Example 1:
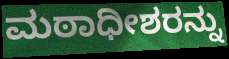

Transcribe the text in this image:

ಮಠಾಧೀಶರನ್ನು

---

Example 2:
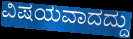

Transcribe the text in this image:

ವಿಷಯವಾದದ್ದು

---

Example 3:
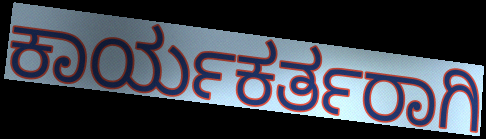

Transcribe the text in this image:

ಕಾರ್ಯಕರ್ತರಾಗಿ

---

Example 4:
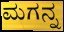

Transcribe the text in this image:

ಮಗನ್ನ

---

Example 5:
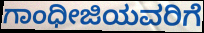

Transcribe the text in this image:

ಗಾಂಧೀಜಿಯವರಿಗೆ